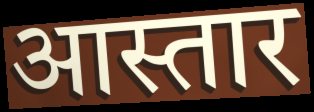
आस्तार